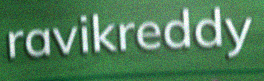
ravikreddy